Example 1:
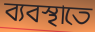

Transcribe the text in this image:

ব্যবস্থাতে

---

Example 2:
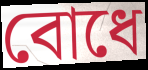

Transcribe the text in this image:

বোধে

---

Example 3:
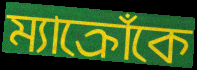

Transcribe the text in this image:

ম্যাক্রোঁকে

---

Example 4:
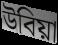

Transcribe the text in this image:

উবিয়া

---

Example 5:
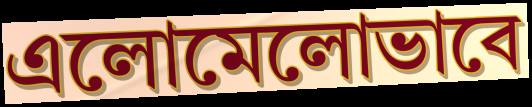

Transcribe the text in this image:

এলোমেলোভাবে